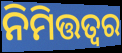
ନିମିତ୍ତତ୍ଵର